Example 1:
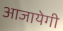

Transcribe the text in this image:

आजायेगी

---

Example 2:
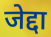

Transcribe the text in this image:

जेद्दा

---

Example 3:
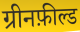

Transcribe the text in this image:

ग्रीनफ़ील्ड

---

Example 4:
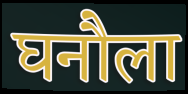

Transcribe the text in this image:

घनौला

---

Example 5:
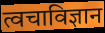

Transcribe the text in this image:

त्वचाविज्ञान